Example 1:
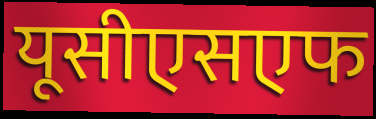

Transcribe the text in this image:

यूसीएसएफ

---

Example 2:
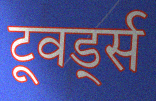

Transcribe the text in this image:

टूवर्ड्स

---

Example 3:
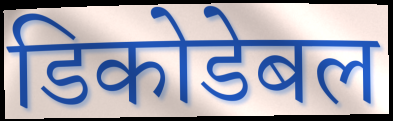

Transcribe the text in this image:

डिकोडेबल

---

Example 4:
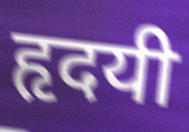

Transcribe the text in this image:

हृदयी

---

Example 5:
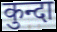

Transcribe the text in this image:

कुन्दा